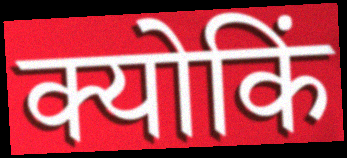
क्योकिं